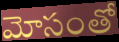
మోసంతో